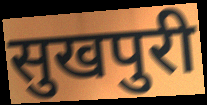
सुखपुरी